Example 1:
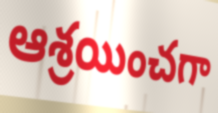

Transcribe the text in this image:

ఆశ్రయించగా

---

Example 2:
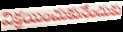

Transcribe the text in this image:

విక్రయించుకునేందుకు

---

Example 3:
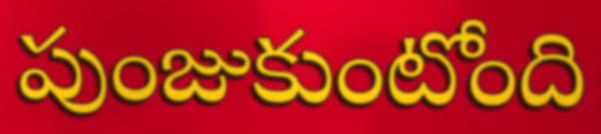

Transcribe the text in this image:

పుంజుకుంటోంది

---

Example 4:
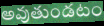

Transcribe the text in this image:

అవుతుండటం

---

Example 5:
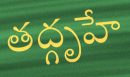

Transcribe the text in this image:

తద్గృహే